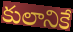
కులానికే